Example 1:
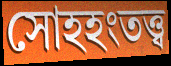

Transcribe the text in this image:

সোহহংতত্ত্ব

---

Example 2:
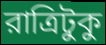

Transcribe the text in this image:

রাত্রিটুকু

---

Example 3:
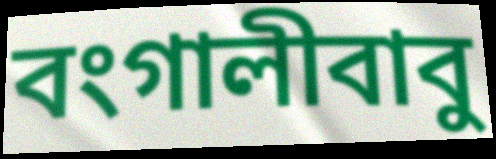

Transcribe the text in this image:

বংগালীবাবু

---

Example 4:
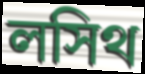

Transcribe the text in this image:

লসিথ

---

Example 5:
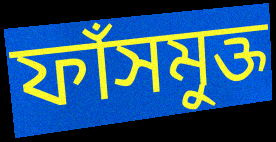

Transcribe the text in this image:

ফাঁসমুক্ত